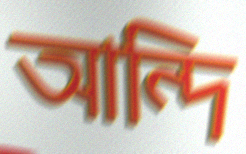
আন্দি